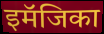
इमॅजिका